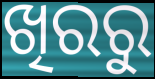
ଖିରରୁ